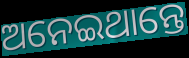
ଅନେଇଥାନ୍ତେ